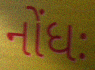
નોંધઃ